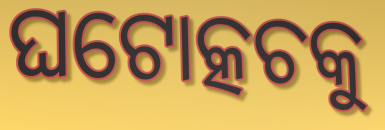
ଘଟୋତ୍କଚକୁ